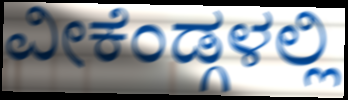
ವೀಕೆಂಡ್ಗಳಲ್ಲಿ